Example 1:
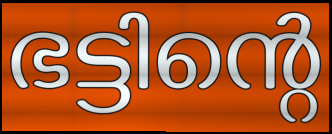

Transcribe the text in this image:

ഭട്ടിന്റെ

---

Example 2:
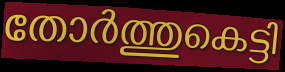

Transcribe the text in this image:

തോർത്തുകെട്ടി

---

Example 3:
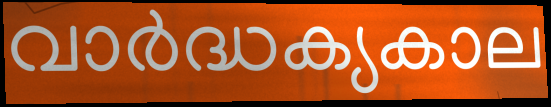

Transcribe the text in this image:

വാർദ്ധക്യകാല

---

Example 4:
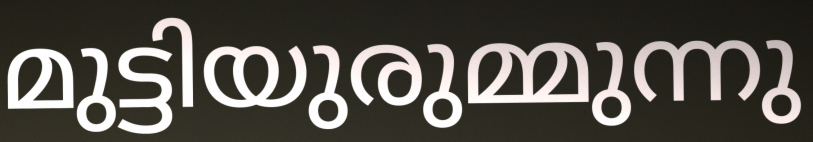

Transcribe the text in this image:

മുട്ടിയുരുമ്മുന്നു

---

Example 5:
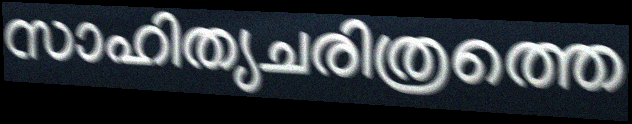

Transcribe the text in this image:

സാഹിത്യചരിത്രത്തെ